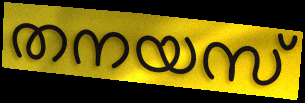
തനയസ്